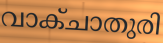
വാക്ചാതുരി